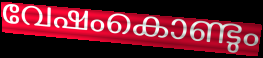
വേഷംകൊണ്ടും